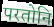
परतोनि